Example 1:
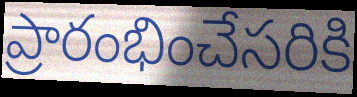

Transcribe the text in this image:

ప్రారంభించేసరికి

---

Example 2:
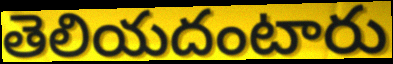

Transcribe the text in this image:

తెలియదంటారు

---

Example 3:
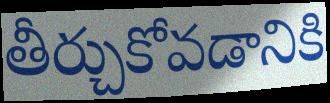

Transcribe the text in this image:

తీర్చుకోవడానికి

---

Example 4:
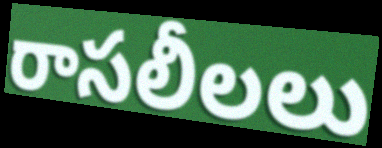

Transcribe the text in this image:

రాసలీలలు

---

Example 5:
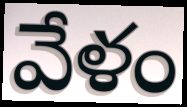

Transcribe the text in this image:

వేళం